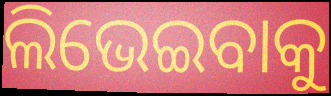
ଲିଭେଇବାକୁ